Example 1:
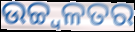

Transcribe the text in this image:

ଉଚ୍ଚ୍ୱଳତର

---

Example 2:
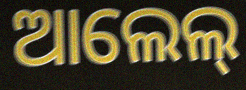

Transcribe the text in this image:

ଆଲେଲ୍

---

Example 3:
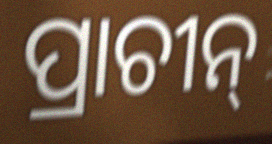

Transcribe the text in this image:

ପ୍ରାଚୀନ୍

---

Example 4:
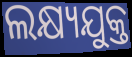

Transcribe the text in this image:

ଲକ୍ଷ୍ୟଯୁକ୍ତ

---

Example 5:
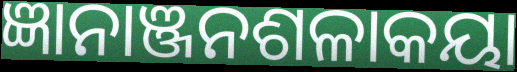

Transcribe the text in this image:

ଜ୍ଞାନାଞ୍ଜନଶଳାକୟା